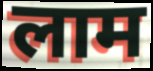
लाम